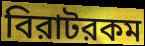
বিরাটরকম